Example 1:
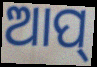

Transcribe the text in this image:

ଆପ୍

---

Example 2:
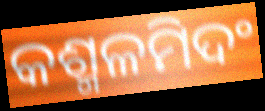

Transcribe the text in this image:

କଶ୍ମଳମିଦଂ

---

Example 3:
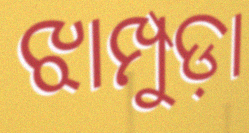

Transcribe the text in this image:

ଝାମ୍ପୁଡ଼ା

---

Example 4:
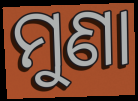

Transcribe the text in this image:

ମୁଣା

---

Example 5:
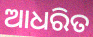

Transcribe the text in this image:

ଆଧରିତ